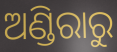
ଅଣ୍ଡିରାରୁ